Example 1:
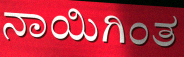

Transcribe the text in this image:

ನಾಯಿಗಿಂತ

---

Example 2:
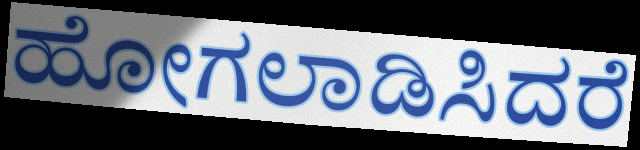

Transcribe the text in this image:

ಹೋಗಲಾಡಿಸಿದರೆ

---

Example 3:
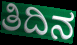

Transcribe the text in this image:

ತಿದಿನ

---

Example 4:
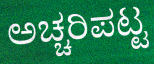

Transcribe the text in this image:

ಅಚ್ಚರಿಪಟ್ಟ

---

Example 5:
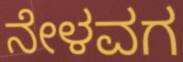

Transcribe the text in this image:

ನೇಳವಗ